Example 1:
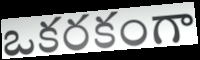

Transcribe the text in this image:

ఒకరకంగా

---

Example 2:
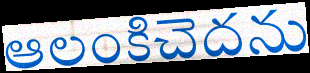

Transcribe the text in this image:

ఆలంకిచెదను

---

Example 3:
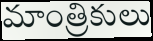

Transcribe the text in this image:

మాంత్రికులు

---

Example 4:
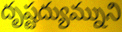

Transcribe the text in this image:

దృష్టద్యుమ్నుని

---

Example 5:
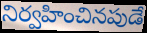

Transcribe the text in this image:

నిర్వహించినపుడే